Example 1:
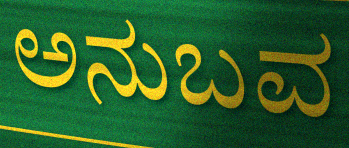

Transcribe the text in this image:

ಅನುಬವ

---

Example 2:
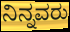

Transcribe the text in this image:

ನಿನ್ನವರು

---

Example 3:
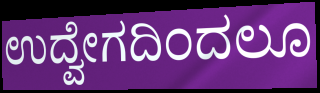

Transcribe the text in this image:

ಉದ್ವೇಗದಿಂದಲೂ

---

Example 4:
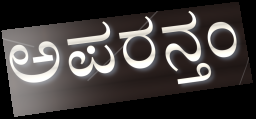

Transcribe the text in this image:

ಅಪರನ್ತಂ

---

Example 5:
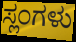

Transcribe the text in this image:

ಸ್ಲಂಗಳು